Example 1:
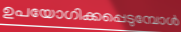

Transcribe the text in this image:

ഉപയോഗിക്കപ്പെടുമ്പോൾ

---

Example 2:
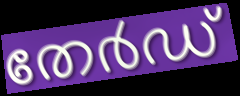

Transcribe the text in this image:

തേർഡ്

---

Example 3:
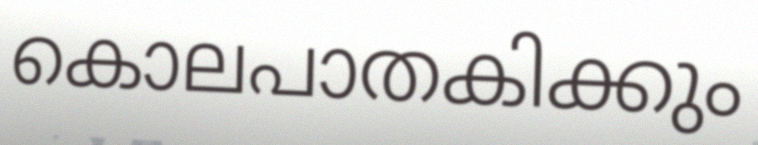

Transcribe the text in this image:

കൊലപാതകിക്കും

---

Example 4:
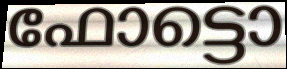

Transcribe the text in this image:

ഫോട്ടൊ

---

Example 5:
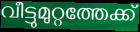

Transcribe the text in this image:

വീട്ടുമുറ്റത്തേക്ക്